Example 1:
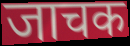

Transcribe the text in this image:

जाचक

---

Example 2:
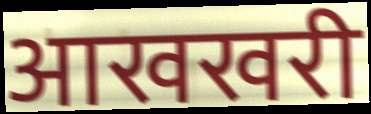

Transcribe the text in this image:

आखखरी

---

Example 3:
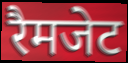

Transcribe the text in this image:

रैमजेट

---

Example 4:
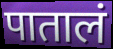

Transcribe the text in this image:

पातालं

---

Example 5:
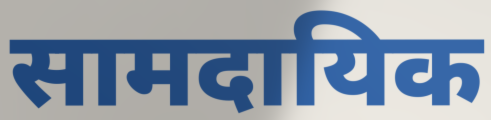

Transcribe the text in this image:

सामदायिक